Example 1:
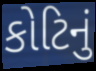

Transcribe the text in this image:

કોટિનું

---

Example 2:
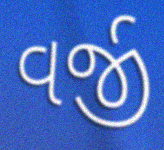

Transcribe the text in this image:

વર્જી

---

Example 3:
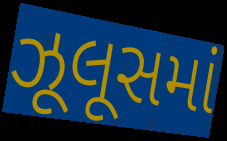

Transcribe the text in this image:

ઝૂલૂસમાં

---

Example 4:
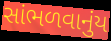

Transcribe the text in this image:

સાંભળવાનુંય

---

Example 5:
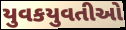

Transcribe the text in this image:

યુવકયુવતીઓ